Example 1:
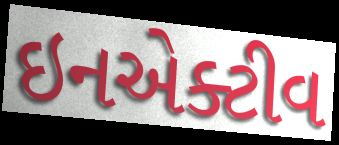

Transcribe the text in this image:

ઇનએક્ટીવ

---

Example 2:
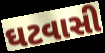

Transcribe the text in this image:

ઘટવાસી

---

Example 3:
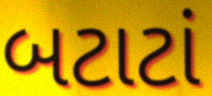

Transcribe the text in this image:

બટાટાં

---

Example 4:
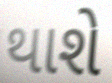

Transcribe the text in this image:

થાશે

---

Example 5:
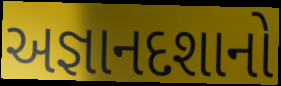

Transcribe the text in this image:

અજ્ઞાનદશાનો